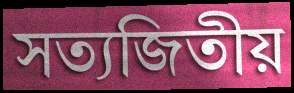
সত্যজিতীয়